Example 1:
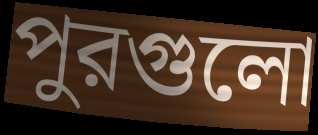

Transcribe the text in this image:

পুরগুলো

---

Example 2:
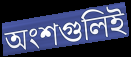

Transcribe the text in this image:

অংশগুলিই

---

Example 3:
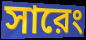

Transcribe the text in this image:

সারেং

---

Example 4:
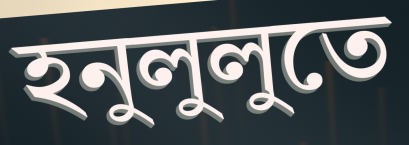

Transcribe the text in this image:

হনুলুলুতে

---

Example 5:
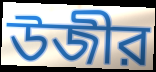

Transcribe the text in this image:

উজীর